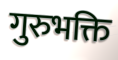
गुरुभक्ति